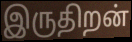
இருதிறன்